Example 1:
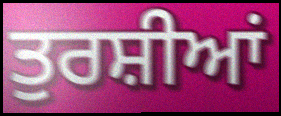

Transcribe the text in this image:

ਤੁਰਸ਼ੀਆਂ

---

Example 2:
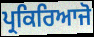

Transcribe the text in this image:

ਪ੍ਰਕਿਰਿਆਜੋ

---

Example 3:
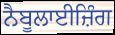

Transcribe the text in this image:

ਨੈਬੂਲਾਈਜ਼ਿੰਗ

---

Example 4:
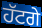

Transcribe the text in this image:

ਹੱਟਗੇ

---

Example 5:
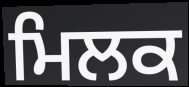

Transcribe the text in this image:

ਮਿਲਕ